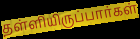
தள்ளியிருப்பார்கள்